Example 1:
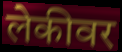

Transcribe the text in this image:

लेकीवर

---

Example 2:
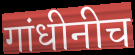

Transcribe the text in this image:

गांधीनीच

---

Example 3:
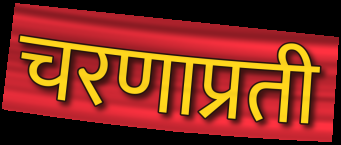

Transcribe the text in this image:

चरणाप्रती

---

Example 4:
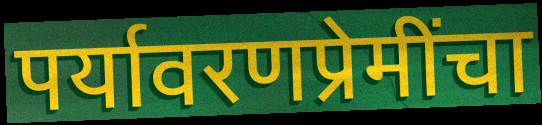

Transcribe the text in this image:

पर्यावरणप्रेमींचा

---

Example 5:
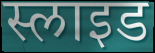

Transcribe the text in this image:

स्लाइड